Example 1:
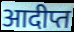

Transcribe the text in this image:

आदीप्त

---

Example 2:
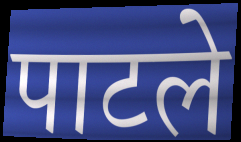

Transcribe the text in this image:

पाटले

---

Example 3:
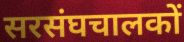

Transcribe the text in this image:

सरसंघचालकों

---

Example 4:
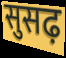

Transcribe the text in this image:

सुसढ़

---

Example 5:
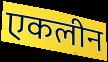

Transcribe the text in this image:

एकलीन